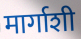
मार्गाशी